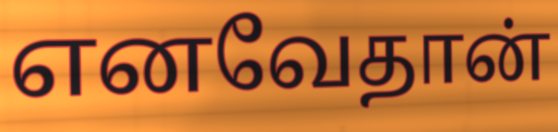
எனவேதான்